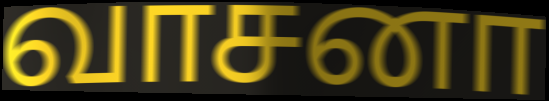
வாசனா